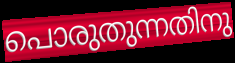
പൊരുതുന്നതിനു